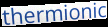
thermionic